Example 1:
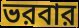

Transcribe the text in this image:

ভরবার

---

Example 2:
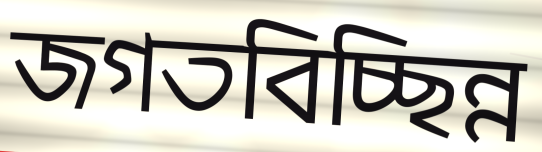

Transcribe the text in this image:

জগতবিচ্ছিন্ন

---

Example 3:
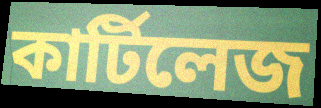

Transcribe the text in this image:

কার্টিলেজ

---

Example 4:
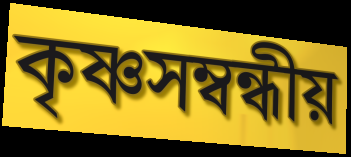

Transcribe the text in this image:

কৃষ্ণসম্বন্ধীয়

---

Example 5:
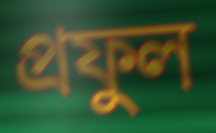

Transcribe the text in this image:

প্রফুল